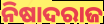
ନିଷାଦରାଜ